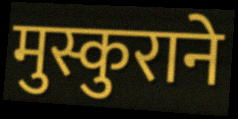
मुस्कुराने